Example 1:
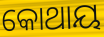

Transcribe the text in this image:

କୋଥାୟ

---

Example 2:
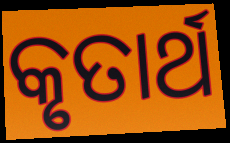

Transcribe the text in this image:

କୃତାର୍ଥ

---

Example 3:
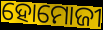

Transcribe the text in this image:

ହୋମୋଜୀ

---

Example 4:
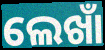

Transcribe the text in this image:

ଲେଖାଁ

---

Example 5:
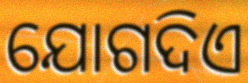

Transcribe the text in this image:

ଯୋଗଦିଏ